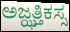
ಅಜ್ಝತ್ತಿಕಸ್ಸ